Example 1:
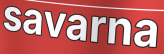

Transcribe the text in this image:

savarna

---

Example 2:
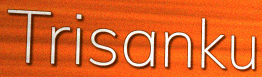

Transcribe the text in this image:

Trisanku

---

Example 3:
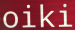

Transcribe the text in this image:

oiki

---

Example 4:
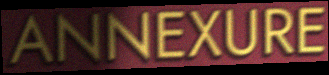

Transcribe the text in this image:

ANNEXURE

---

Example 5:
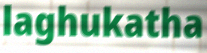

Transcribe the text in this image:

laghukatha